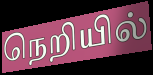
நெறியில்